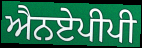
ਐਨਏਪੀਪੀ